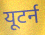
यूटर्न